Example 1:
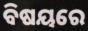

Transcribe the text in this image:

ବିଷୟରେ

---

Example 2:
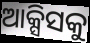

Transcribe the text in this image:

ଆକ୍ସିସକୁ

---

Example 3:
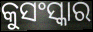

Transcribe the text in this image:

କୁସଂସ୍କାର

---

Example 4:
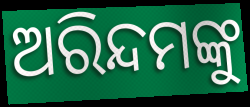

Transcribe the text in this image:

ଅରିନ୍ଦମଙ୍କୁ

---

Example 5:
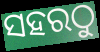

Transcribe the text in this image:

ସହରଠୁ